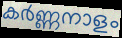
കർണ്ണനാളം